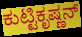
ಕುಟ್ಟಿಕೃಷ್ಣನ್